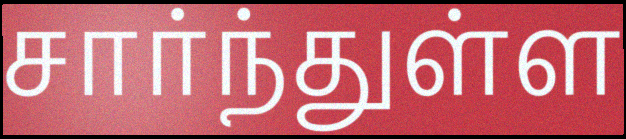
சார்ந்துள்ள